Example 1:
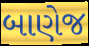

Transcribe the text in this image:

બાણેજ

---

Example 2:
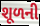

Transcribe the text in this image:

શૂળની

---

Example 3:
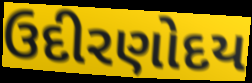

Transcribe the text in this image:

ઉદીરણોદય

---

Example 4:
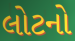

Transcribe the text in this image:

લોટનો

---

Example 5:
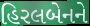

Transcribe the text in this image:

હિરલબેનને